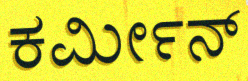
ಕರ್ಮೀನ್